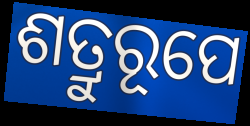
ଶତ୍ରୁରୂପେ